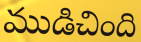
ముడిచింది